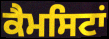
ਕੈਮਸਿਟਾਂ